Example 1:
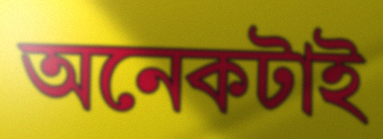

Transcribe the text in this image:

অনেকটাই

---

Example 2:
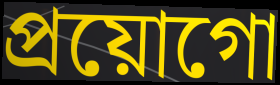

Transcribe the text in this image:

প্ৰয়োগো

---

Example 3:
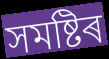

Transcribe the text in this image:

সমষ্টিৰ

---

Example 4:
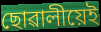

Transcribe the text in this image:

ছোৱালীয়েই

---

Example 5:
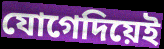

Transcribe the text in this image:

যোগেদিয়েই